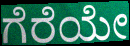
ಗೆರೆಯೇ